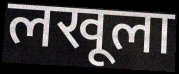
लखूला